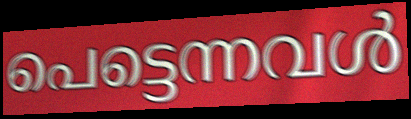
പെട്ടെന്നവൾ